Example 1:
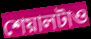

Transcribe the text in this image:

শেয়ালটাও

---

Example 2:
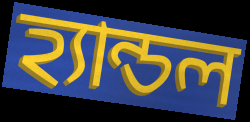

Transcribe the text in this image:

হ্যান্ডল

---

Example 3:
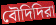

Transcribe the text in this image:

বৌদিদিরা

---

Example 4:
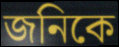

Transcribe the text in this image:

জনিকে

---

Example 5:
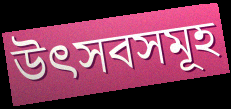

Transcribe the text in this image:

উৎসবসমূহ